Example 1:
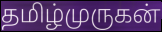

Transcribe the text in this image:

தமிழ்முருகன்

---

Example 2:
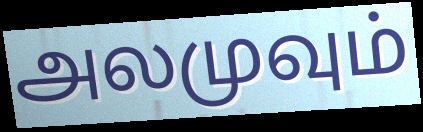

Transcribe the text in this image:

அலமுவும்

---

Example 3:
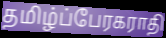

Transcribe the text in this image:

தமிழ்ப்பேரகராதி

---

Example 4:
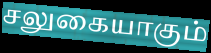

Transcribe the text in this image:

சலுகையாகும்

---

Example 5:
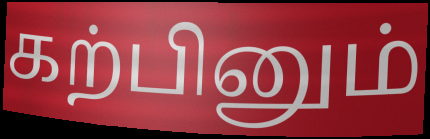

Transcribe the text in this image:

கற்பினும்